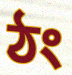
ঠং